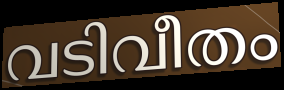
വടിവീതം